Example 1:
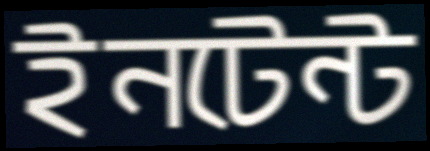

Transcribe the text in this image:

ইনটেন্ট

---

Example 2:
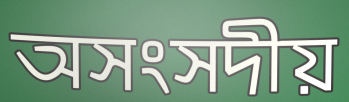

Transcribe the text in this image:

অসংসদীয়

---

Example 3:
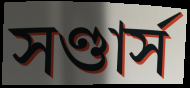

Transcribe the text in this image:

সণ্ডার্স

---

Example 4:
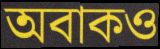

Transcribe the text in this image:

অবাকও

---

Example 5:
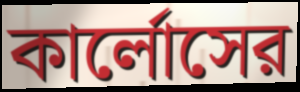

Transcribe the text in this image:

কার্লোসের